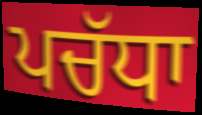
ਪਚੱਧਾ